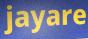
jayare